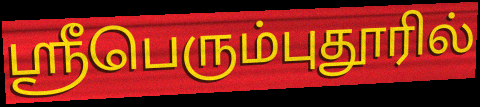
ஸ்ரீபெரும்புதூரில்